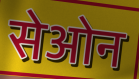
सेओन